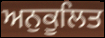
ਅਨੁਕੂਲਿਤ